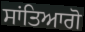
ਸਾਂਤਿਆਗੋ